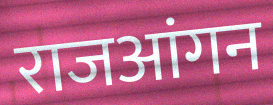
राजआंगन